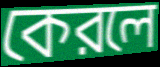
কেরলে